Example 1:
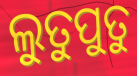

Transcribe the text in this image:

ଲୁତୁପୁତୁ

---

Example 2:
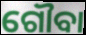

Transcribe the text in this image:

ଗୌବା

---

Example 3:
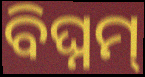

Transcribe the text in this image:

ବିଘ୍ନମ୍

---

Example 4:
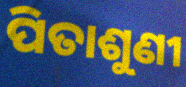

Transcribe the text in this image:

ପିତାଶୁଣୀ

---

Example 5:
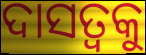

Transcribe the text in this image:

ଦାସତ୍ୱକୁ